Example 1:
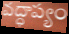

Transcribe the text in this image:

వద్ధాప్యం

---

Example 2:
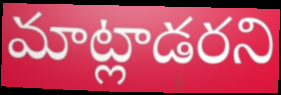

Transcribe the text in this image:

మాట్లాడరని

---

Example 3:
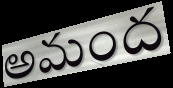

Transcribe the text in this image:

అమంద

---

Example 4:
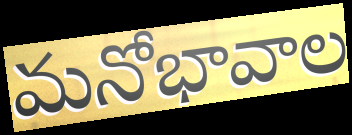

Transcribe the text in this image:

మనోభావాల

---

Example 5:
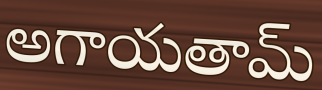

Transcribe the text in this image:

అగాయతామ్